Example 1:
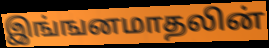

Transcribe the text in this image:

இங்ஙனமாதலின்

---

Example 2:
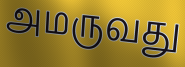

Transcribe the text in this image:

அமருவது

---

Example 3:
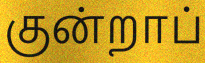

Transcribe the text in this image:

குன்றாப்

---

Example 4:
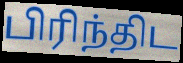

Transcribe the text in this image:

பிரிந்திட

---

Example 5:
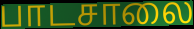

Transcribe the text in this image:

பாடசாலை